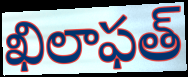
ఖిలాఫత్